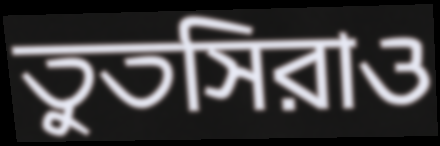
তুতসিরাও